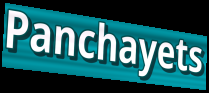
Panchayets